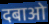
दबाओ